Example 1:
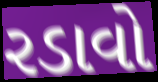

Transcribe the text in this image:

રડાવો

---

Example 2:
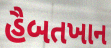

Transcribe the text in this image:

હૈબતખાન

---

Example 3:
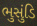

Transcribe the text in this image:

ભુસુંડિ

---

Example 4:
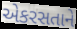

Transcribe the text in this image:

એકરસતાને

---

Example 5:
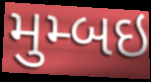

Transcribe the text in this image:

મુમ્બઇ